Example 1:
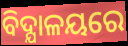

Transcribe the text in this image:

ବିଦ୍ଯାଳୟରେ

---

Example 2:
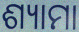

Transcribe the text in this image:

ଶ୍ୟାମା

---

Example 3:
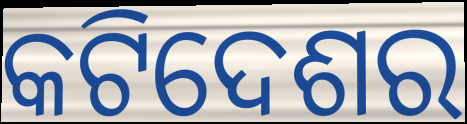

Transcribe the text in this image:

କଟିଦେଶର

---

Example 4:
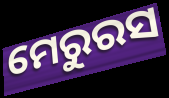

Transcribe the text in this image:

ମେରୁରସ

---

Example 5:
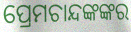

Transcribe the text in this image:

ପ୍ରେମଚାନ୍ଦଙ୍କଙ୍କର